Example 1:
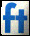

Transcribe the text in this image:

ft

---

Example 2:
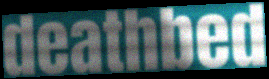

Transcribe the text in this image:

deathbed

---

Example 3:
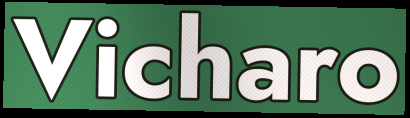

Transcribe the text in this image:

Vicharo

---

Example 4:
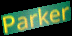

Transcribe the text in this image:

Parker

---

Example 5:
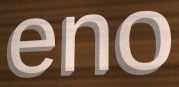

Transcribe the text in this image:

eno